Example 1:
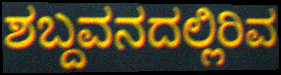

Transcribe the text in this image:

ಶಬ್ದವನದಲ್ಲಿರಿವ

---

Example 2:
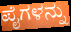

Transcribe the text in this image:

ಪೈಗಳನ್ನು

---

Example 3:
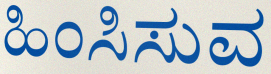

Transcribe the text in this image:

ಹಿಂಸಿಸುವ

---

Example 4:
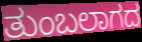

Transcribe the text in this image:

ತುಂಬಲಾಗದ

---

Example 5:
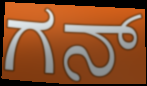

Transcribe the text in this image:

ಗನ್